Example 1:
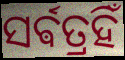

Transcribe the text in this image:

ସର୍ଵତ୍ରହିଁ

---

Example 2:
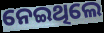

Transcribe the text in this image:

ନେଇଥିଲେ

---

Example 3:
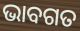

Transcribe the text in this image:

ଭାବଗତ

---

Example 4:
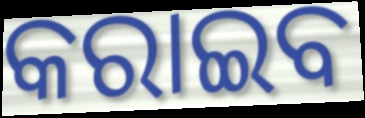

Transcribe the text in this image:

କରାଇବ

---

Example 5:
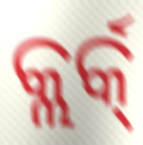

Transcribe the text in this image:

କ୍ଲର୍କ୍